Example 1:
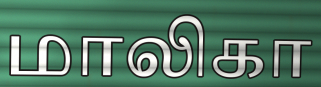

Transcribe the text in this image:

மாலிகா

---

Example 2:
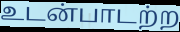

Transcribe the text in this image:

உடன்பாடற்ற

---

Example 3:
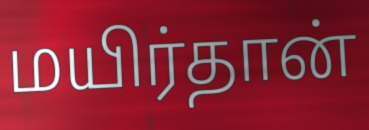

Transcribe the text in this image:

மயிர்தான்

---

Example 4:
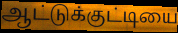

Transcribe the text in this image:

ஆட்டுக்குட்டியை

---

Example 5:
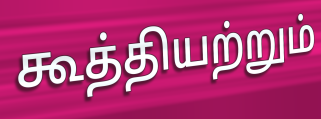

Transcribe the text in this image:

கூத்தியற்றும்